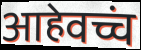
आहेवच्चं